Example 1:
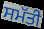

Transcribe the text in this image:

ਸਮੱਤੀ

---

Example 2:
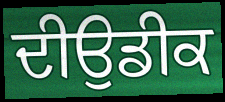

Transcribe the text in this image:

ਦੀਉਡੀਕ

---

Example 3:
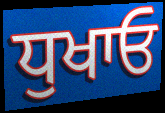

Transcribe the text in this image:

ਧੁਖਾਓ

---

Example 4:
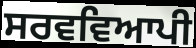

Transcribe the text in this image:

ਸਰਵਵਿਆਪੀ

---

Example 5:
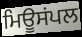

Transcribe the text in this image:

ਮਿਊਸਂਪਲ